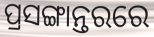
ପ୍ରସଙ୍ଗାନ୍ତରରେ